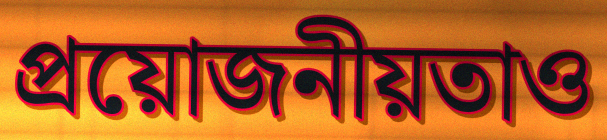
প্ৰয়োজনীয়তাও